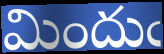
మిందుఁ